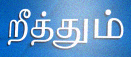
றீத்தும்